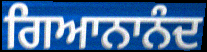
ਗਿਆਨਾਨੰਦ